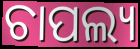
ଚାପଲ୍ୟ